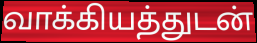
வாக்கியத்துடன்